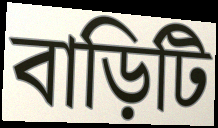
বাড়িটি